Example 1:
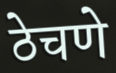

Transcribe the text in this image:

ठेचणे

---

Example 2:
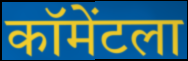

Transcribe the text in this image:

कॉमेंटला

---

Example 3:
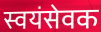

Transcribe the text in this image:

स्वयंसेवक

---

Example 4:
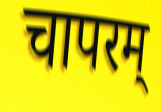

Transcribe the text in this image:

चापरम्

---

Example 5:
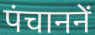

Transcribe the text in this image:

पंचाननें